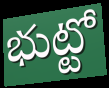
భుట్టో